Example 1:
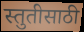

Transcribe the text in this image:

स्तुतीसाठी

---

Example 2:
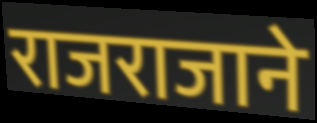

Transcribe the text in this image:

राजराजाने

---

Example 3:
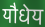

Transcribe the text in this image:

यौधेय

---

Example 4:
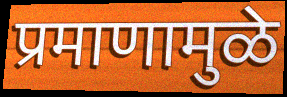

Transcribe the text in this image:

प्रमाणामुळे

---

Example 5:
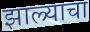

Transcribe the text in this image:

झाल्याचा